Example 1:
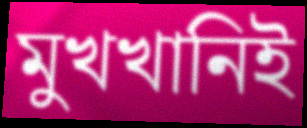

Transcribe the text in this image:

মুখখানিই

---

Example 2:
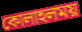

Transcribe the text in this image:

কোলাহলময়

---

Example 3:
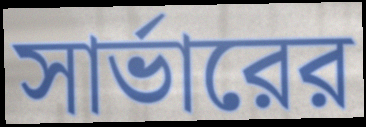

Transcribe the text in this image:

সার্ভারের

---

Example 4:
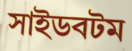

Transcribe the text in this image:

সাইডবটম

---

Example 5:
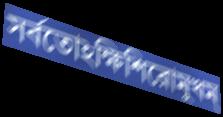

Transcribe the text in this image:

সর্বতোঽক্ষিশিরোমুখম্